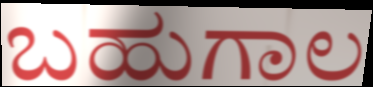
ಬಹುಗಾಲ